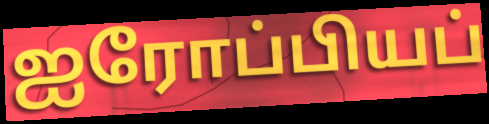
ஐரோப்பியப்